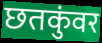
छतकुंवर